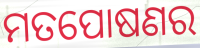
ମତପୋଷଣର